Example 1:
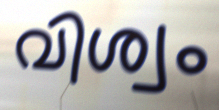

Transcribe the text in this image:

വിശ്വം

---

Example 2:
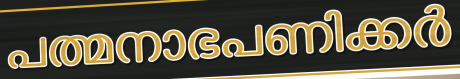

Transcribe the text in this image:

പത്മനാഭപണിക്കർ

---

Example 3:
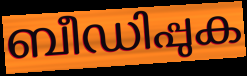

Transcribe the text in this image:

ബീഡിപ്പുക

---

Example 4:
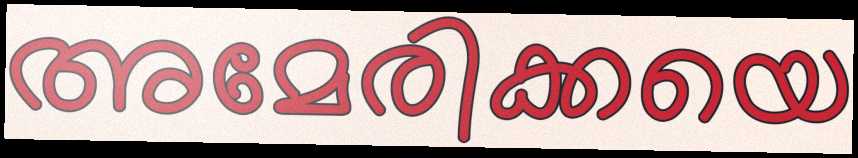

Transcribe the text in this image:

അമേരിക്കയെ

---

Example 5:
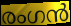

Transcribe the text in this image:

രംഗൻ